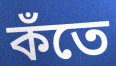
কঁতে